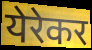
येरेकर